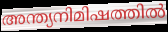
അന്ത്യനിമിഷത്തിൽ